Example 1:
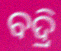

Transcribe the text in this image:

ବଦ୍ରି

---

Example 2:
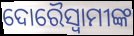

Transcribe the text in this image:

ଦୋରୈସ୍ବାମୀଙ୍କ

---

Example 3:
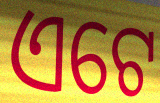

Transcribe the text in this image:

ଏଟେ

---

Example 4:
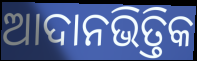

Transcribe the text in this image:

ଆଦାନଭିତ୍ତିକ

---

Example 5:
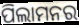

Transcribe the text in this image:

ପିଲାମନର